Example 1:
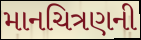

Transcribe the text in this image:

માનચિત્રણની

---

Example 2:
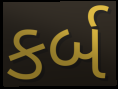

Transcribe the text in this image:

કર્બ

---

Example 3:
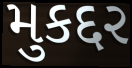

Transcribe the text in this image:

મુકદ્દર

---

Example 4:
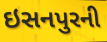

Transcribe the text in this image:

ઇસનપુરની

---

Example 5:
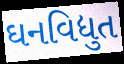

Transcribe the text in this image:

ઘનવિદ્યુત